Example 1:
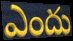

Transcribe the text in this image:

ఎందు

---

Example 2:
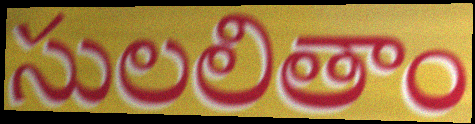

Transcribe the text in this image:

సులలితాం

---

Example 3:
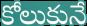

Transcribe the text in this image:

కోలుకునే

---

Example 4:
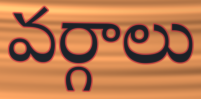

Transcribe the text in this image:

వర్గాలు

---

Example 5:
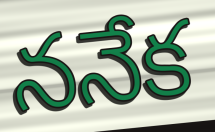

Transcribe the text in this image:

ననేక